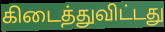
கிடைத்துவிட்டது